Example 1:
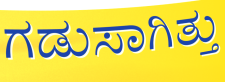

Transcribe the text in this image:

ಗಡುಸಾಗಿತ್ತು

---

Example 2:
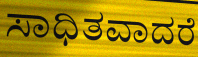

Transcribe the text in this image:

ಸಾಧಿತವಾದರೆ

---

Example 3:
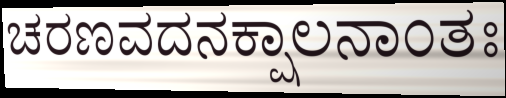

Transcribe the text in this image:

ಚರಣವದನಕ್ಷಾಲನಾಂತಃ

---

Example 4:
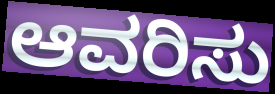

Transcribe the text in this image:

ಆವರಿಸು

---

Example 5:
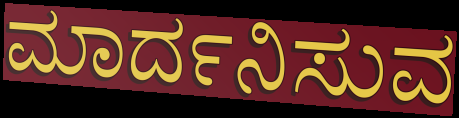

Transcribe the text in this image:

ಮಾರ್ದನಿಸುವ